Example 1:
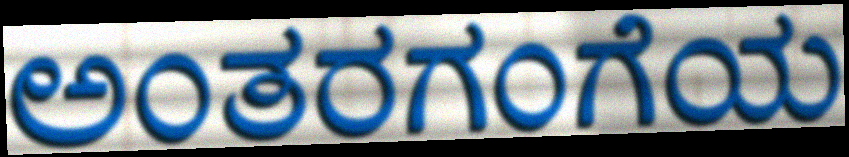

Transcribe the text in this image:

ಅಂತರಗಂಗೆಯ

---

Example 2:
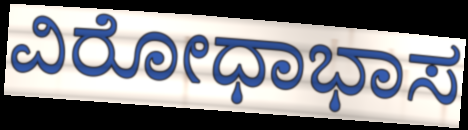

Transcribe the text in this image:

ವಿರೋಧಾಭಾಸ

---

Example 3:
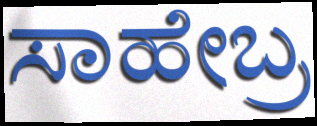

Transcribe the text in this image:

ಸಾಹೇಬ್ರ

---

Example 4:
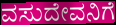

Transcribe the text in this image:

ವಸುದೇವನಿಗೆ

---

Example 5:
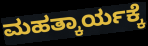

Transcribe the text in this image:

ಮಹತ್ಕಾರ್ಯಕ್ಕೆ